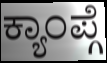
ಕ್ಯಾಂಪ್ಗೆ